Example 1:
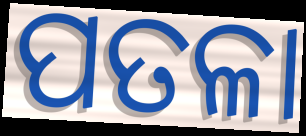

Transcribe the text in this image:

ପତଳା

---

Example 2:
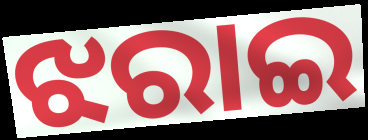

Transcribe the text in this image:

ଝରାଇ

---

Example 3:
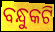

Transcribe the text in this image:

ବନ୍ଧୁକଟି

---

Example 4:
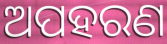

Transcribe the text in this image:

ଅପହରଣ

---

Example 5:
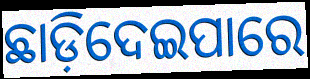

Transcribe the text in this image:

ଛାଡ଼ିଦେଇପାରେ